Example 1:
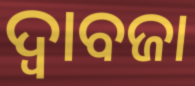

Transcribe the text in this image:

ଦ୍ୱାବଜା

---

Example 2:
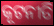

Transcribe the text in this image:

କୂଟନୀତି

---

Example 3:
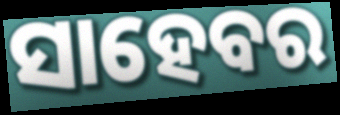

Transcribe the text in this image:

ସାହେବର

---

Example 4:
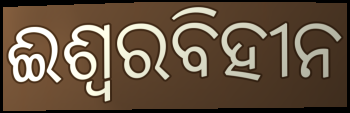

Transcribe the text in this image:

ଈଶ୍ୱରବିହୀନ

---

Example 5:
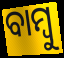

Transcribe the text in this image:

ବାମ୍ବୁ